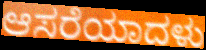
ಆಸರೆಯಾದಳು